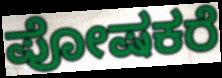
ಪೋಷಕರೆ